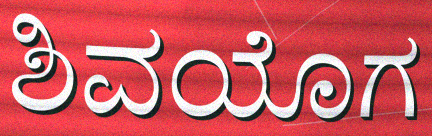
ಶಿವಯೊಗ